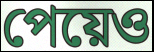
পেয়েও